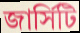
জার্সিটি